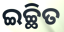
ଇଚ୍ଛିତ